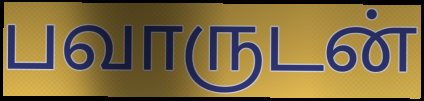
பவாருடன்